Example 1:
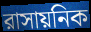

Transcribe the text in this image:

রাসায়নিক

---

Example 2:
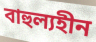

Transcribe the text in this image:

বাহুল্যহীন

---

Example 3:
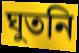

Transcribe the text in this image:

ঘুতনি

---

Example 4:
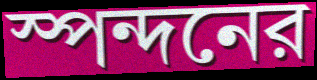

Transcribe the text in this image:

স্পন্দনের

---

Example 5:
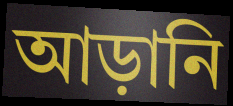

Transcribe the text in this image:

আড়ানি